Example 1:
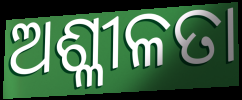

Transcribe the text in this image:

ଅଶ୍ଳୀଳତା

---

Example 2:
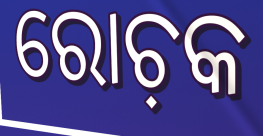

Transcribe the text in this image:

ରୋଚ଼କ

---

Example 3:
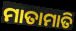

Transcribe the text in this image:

ମାତାମାତି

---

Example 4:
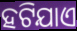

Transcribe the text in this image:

ହଟିଯାଏ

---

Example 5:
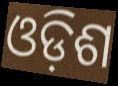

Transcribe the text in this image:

ଓଡ଼ିଶ